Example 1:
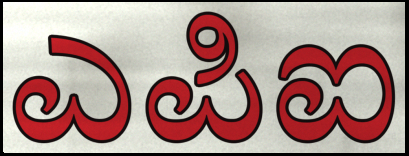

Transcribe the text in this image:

ಎಪಿಐ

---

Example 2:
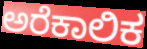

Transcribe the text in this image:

ಅರೆಕಾಲಿಕ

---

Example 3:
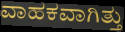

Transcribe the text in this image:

ವಾಹಕವಾಗಿತ್ತು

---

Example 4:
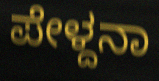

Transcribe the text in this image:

ಪೇಳ್ದನಾ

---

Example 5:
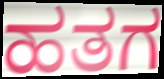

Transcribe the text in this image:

ಹತಗ